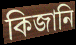
কিজানি